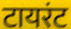
टायरंट